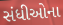
સંધીઓના